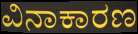
ವಿನಾಕಾರಣ